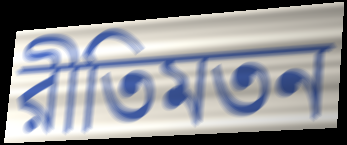
রীতিমতন